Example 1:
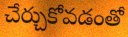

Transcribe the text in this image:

చేర్చుకోవడంతో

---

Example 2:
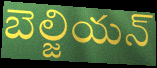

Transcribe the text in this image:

బెల్జియన్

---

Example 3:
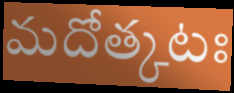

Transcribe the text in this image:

మదోత్కటః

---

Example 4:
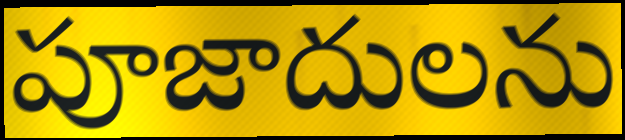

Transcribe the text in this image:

పూజాదులను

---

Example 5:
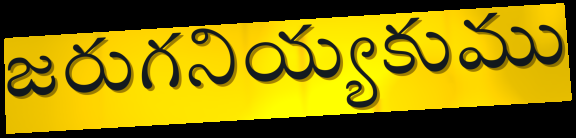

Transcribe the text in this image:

జరుగనియ్యకుము